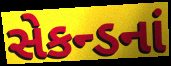
સેકન્ડનાં